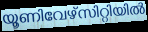
യൂണിവേഴ്സിറ്റിയിൽ